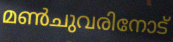
മൺചുവരിനോട്